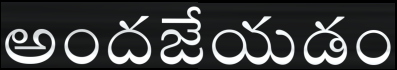
అందజేయడం